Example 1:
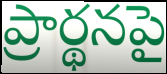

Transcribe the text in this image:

ప్రార్థనపై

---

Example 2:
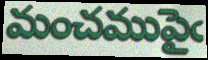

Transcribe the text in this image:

మంచముపైఁ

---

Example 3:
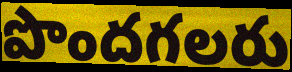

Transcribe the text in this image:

పొందగలరు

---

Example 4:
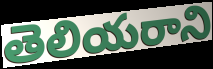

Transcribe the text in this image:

తెలియరాని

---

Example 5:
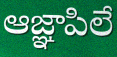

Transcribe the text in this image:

ఆజ్ఞాపిలే